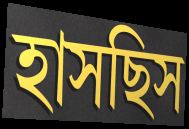
হাসছিস